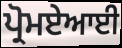
ਪ੍ਰੋਮਏਆਈ